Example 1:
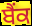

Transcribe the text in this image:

ਬੈਂਕ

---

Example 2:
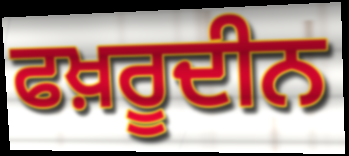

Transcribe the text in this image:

ਫਖ਼ਰੂਦੀਨ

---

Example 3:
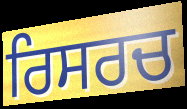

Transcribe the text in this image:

ਰਿਸਰਚ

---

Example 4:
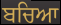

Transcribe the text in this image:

ਬਚਿਆ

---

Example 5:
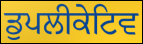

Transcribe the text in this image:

ਡੁਪਲੀਕੇਟਿਵ